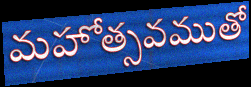
మహోత్సవముతో